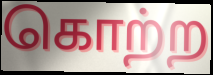
கொற்ற